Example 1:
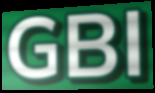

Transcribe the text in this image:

GBI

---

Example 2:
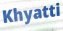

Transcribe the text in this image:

Khyatti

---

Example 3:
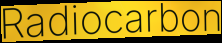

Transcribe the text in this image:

Radiocarbon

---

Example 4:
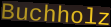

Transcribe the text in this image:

Buchholz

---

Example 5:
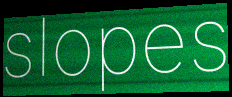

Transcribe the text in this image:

slopes